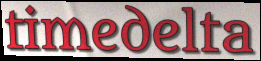
timedelta